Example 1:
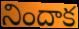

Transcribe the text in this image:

నిందాక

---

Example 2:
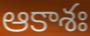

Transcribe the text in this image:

ఆకాశః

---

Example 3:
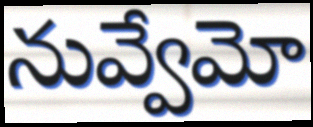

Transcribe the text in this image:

నువ్వేమో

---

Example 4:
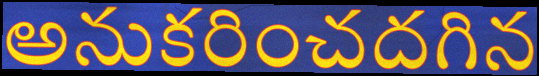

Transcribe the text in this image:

అనుకరించదగిన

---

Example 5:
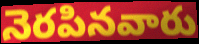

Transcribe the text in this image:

నెరపినవారు